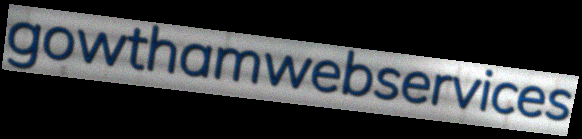
gowthamwebservices